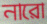
নাৱো